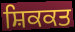
ਸ਼ਿਕਕਤ